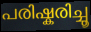
പരിഷ്കരിച്ചൂ